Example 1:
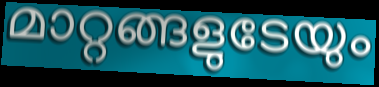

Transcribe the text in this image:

മാറ്റങ്ങളുടേയും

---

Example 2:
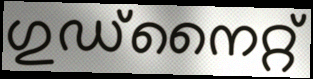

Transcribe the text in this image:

ഗുഡ്നൈറ്റ്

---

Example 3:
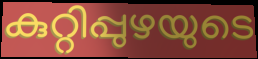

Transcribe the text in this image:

കുറ്റിപ്പുഴയുടെ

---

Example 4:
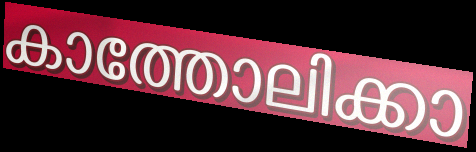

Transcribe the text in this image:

കാത്തോലിക്കാ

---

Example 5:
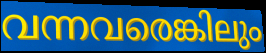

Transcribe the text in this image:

വന്നവരെങ്കിലും